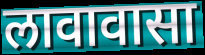
लावावासा